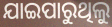
ଯାଇପାରୁଥିଲୁ